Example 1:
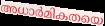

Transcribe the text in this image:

അധാർമികതയെ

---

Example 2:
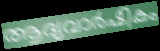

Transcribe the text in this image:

ആദ്യവാർഷികം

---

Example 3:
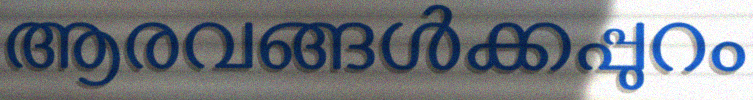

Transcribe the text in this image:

ആരവങ്ങൾക്കപ്പുറം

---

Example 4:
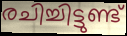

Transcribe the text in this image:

രചിച്ചിട്ടുണ്ട്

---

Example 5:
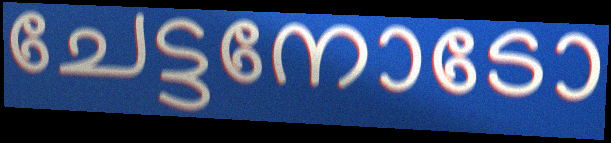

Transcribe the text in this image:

ചേട്ടനോടോ